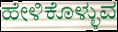
ಹೇಳಿಕೊಳ್ಳುವ